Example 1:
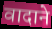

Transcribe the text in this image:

वादाने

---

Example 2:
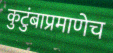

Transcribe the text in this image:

कुटुंबाप्रमाणेच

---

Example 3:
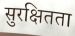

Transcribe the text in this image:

सुरक्षितता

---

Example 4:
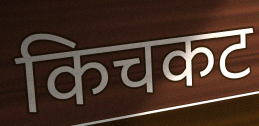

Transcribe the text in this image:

किचकट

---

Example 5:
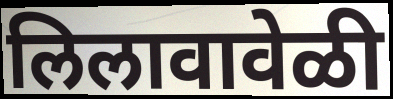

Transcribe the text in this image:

लिलावावेळी